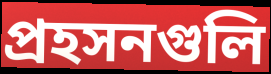
প্রহসনগুলি